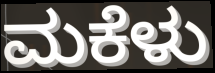
ಮಕೆಳು